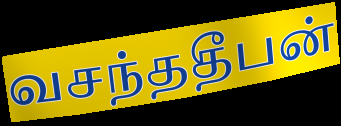
வசந்ததீபன்